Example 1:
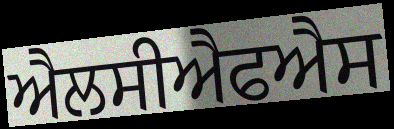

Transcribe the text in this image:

ਐਲਸੀਐਫਐਸ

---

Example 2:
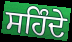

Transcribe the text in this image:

ਸਹਿੰਦੇ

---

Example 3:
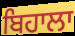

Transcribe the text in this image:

ਬਿਹਾਲਾ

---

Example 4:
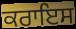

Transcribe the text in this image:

ਕਰਾਇਸ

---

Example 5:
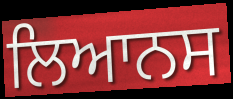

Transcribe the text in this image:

ਲਿਆਨਸ